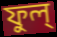
ফুল্